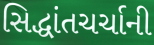
સિદ્ધાંતચર્ચાની